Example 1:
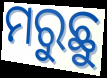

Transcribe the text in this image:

ମରୁଛୁ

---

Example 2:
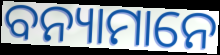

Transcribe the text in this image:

ବନ୍ୟାମାନେ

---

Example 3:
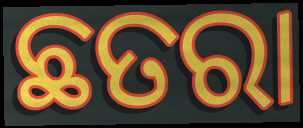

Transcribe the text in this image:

ଛତରା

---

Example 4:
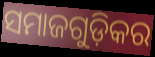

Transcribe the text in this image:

ସମାଜଗୁଡ଼ିକର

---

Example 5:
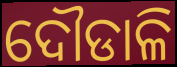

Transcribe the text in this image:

ଦୌଡାଳି